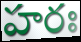
హరః